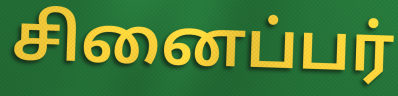
சினைப்பர்